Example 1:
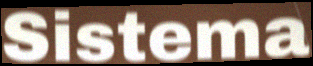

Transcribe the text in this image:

Sistema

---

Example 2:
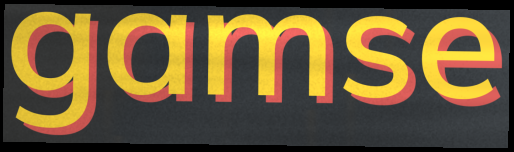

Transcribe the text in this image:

gamse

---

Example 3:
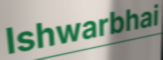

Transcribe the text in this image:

Ishwarbhai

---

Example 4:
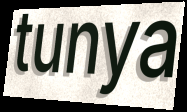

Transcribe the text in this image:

tunya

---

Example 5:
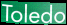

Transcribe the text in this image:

Toledo